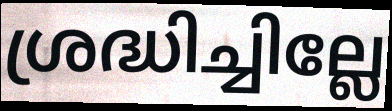
ശ്രദ്ധിച്ചില്ലേ